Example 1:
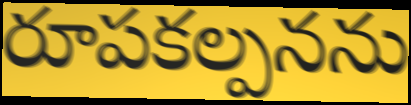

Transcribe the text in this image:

రూపకల్పనను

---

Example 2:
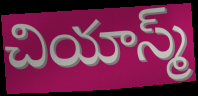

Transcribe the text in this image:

చియాస్మ్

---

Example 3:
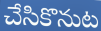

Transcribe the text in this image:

చేసికొనుట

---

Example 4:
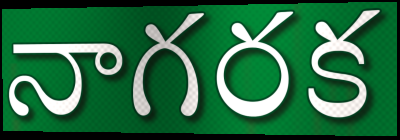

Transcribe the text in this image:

నాగరక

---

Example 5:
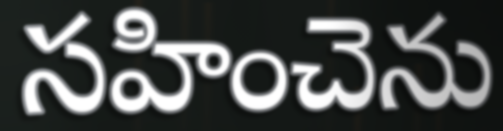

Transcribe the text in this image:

సహించెను